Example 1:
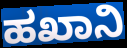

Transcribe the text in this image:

ಹಖಾನಿ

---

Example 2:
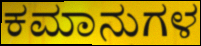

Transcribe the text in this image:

ಕಮಾನುಗಳ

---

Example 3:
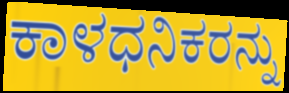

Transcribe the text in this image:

ಕಾಳಧನಿಕರನ್ನು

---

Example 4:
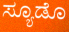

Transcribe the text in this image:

ಸ್ಯೂಡೊ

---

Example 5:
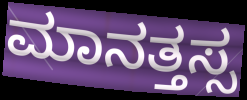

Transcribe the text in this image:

ಮಾನತ್ತಸ್ಸ